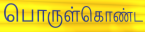
பொருள்கொண்ட